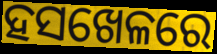
ହସଖେଳରେ